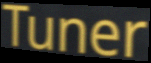
Tuner